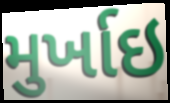
મુર્ખાઇ